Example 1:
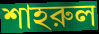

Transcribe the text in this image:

শাহরুল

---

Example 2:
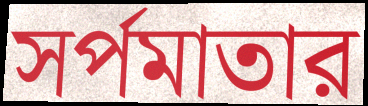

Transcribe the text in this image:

সর্পমাতার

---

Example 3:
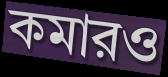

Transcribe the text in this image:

কমারও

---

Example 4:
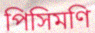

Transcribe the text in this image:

পিসিমণি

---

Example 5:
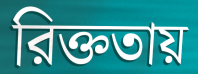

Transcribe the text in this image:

রিক্ততায়